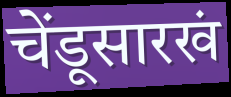
चेंडूसारखं